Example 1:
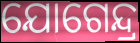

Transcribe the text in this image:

ଯୋଗେନ୍ଦ୍ର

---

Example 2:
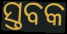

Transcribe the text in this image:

ସ୍ତବକ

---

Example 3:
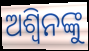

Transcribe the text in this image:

ଅଶ୍ବିନଙ୍କୁ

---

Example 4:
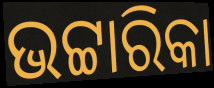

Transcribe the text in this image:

ଭଟ୍ଟାରିକା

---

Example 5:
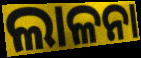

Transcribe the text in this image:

ଲାଳନା